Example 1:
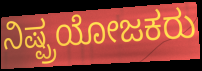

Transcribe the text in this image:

ನಿಷ್ಪ್ರಯೋಜಕರು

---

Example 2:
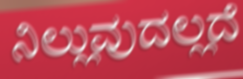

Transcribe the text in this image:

ನಿಲ್ಲುವುದಲ್ಲದೆ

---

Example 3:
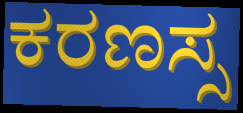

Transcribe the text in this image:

ಕರಣಸ್ಸ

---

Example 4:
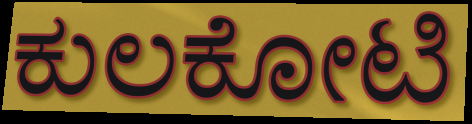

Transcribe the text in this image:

ಕುಲಕೋಟಿ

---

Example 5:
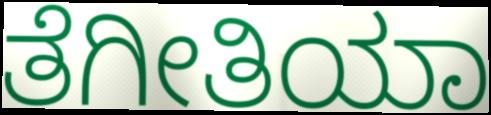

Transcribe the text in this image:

ತೆಗೀತಿಯಾ